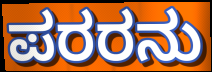
ಪರರನು